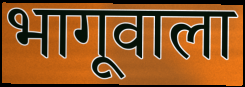
भागूवाला